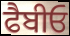
ਫੈਬੀਓ